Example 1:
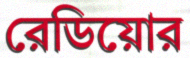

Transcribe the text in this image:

রেডিয়োর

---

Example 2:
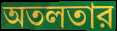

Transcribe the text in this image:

অতলতার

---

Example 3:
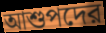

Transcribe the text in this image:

আশুপদের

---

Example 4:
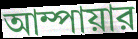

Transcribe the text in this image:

আম্পায়ার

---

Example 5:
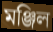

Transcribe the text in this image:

মঞ্জিল